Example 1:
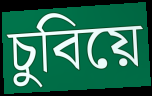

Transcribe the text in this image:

চুবিয়ে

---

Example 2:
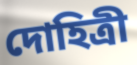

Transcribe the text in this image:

দোহিত্রী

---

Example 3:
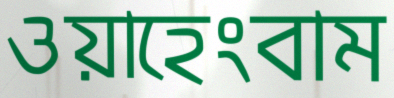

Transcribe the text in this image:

ওয়াহেংবাম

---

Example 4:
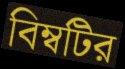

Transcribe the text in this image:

বিম্বটির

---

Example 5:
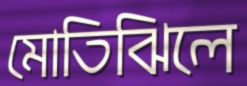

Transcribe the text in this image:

মোতিঝিলে